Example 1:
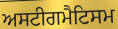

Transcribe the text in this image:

ਅਸਟੀਗਮੈਟਿਸਮ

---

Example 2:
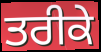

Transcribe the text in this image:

ਤਰੀਕੇ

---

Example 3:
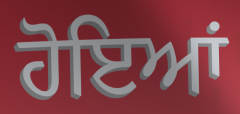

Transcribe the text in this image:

ਹੋਇਆਂ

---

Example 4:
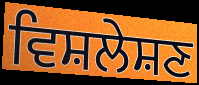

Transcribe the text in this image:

ਵਿਸ਼ਲੇਸ਼ਣ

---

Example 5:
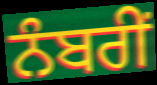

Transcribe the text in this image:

ਨੰਬਰੀਂ